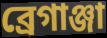
ব্রেগাঞ্জা